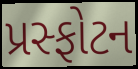
પ્રસ્ફોટન